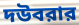
দউবরার